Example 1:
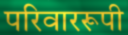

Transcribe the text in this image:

परिवाररूपी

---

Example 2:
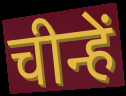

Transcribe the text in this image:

चीन्हें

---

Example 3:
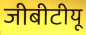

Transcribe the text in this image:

जीबीटीयू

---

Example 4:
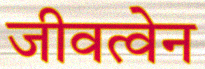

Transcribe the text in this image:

जीवत्वेन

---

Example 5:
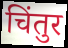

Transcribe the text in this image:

चिंतुर